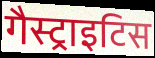
गैस्ट्राइटिस